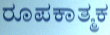
ರೂಪಕಾತ್ಮಕ